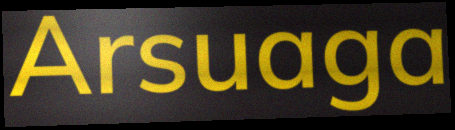
Arsuaga